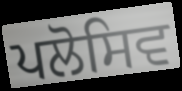
ਪਲੋਸਿਵ